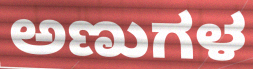
ಅಣುಗಳ